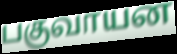
பகுவாயன